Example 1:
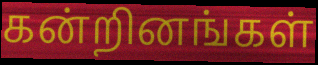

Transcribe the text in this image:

கன்றினங்கள்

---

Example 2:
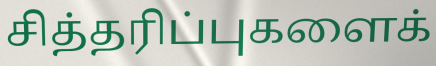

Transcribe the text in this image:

சித்தரிப்புகளைக்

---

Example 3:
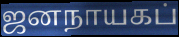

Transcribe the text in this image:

ஜனநாயகப்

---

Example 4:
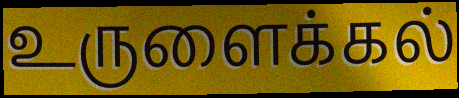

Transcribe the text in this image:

உருளைக்கல்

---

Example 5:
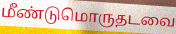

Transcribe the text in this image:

மீண்டுமொருதடவை